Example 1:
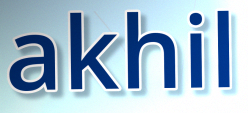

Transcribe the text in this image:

akhil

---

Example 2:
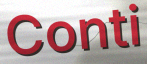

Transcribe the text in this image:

Conti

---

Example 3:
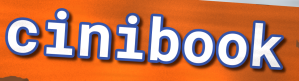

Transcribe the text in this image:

cinibook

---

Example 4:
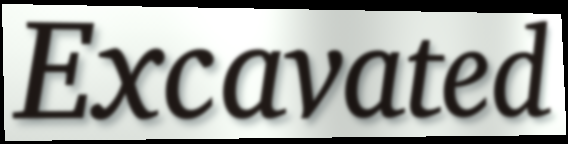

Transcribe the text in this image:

Excavated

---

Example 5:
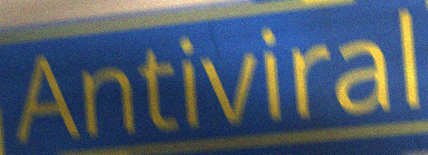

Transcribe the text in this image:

Antiviral